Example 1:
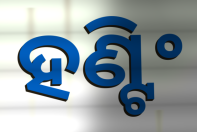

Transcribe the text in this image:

ହଣ୍ଟିଂ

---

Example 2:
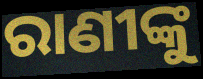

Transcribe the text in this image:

ରାଣୀଙ୍କୁ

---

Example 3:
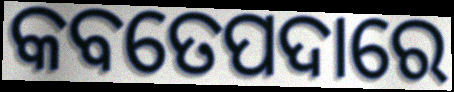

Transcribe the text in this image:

କବତେପଦାରେ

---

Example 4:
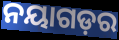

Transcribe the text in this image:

ନୟାଗଡ଼ର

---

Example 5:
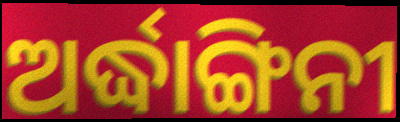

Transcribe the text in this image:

ଅର୍ଦ୍ଧାଙ୍ଗିନୀ